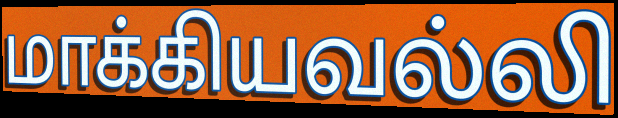
மாக்கியவல்லி